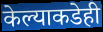
केल्याकडेही